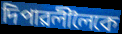
দিপাৱলীলৈকে